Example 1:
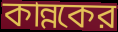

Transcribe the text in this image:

কান্নকের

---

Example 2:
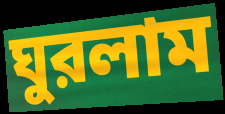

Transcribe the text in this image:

ঘুরলাম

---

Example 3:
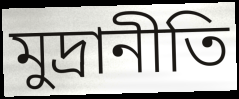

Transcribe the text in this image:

মুদ্রানীতি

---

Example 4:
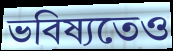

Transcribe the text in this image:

ভবিষ্যতেও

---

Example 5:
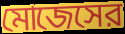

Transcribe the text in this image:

মোজেসের